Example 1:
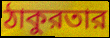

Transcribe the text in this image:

ঠাকুরতার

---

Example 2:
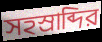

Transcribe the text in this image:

সহস্রাব্দির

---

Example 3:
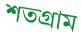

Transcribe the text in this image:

শতগ্রাম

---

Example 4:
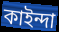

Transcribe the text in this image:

কাইন্দা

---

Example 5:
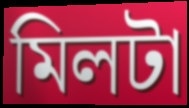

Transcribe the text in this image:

মিলটা